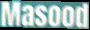
Masood